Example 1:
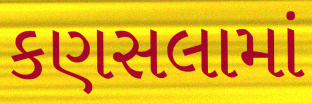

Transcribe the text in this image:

કણસલામાં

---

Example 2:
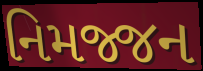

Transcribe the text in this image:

નિમજ્જન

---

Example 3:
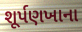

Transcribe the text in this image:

શૂર્પણખાના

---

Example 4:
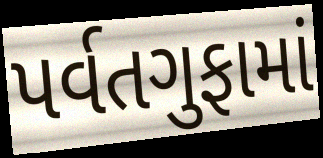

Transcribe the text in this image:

પર્વતગુફામાં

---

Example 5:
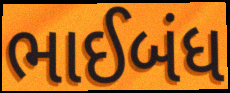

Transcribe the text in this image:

ભાઈબંધ